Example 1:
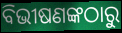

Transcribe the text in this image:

ବିଭୀଷଣଙ୍କଠାରୁ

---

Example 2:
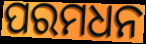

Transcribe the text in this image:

ପରମଧନ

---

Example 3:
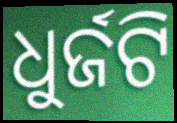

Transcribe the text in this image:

ଧୁର୍ଜଟି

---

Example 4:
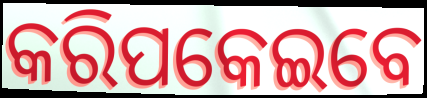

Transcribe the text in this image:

କରିପକେଇବେ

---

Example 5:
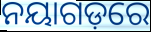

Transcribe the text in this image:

ନୟାଗଡ଼ରେ